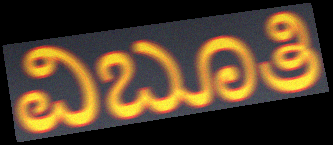
ವಿಬೂತಿ